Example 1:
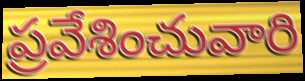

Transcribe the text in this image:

ప్రవేశించువారి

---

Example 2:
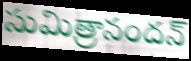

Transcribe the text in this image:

సుమిత్రానందన్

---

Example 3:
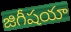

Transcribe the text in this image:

జిగీషయా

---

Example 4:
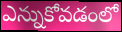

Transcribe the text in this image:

ఎన్నుకోవడంలో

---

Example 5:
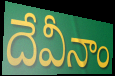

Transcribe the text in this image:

దేవీనాం